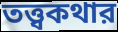
তত্ত্বকথার